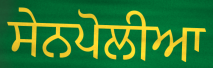
ਸੇਨਪੋਲੀਆ